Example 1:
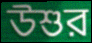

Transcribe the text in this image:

উশুর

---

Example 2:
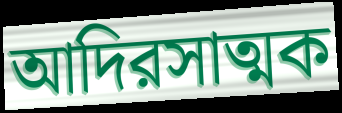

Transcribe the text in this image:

আদিরসাত্মক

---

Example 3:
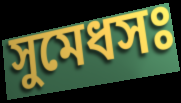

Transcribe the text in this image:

সুমেধসঃ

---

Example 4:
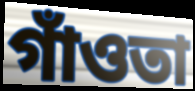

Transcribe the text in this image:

গাঁওতা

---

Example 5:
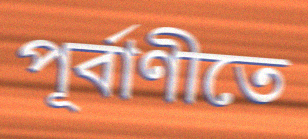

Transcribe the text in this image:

পূর্বাণীতে